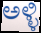
ಅಳ್ಳಿ